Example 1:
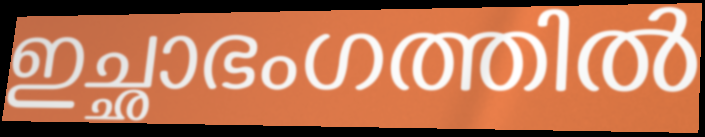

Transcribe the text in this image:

ഇച്ഛാഭംഗത്തിൽ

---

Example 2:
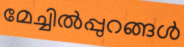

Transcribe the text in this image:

മേച്ചിൽപ്പുറങ്ങൾ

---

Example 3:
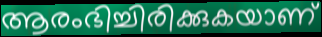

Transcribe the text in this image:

ആരംഭിച്ചിരിക്കുകയാണ്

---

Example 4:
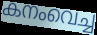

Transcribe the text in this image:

കനംവെച്ച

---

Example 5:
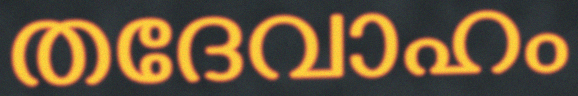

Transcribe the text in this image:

തദേവാഹം